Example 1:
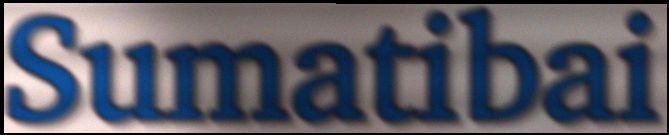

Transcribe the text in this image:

Sumatibai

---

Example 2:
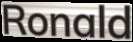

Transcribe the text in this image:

Ronald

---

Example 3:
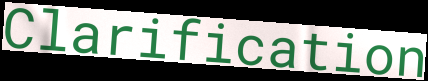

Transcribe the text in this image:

Clarification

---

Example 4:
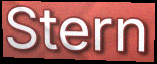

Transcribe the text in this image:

Stern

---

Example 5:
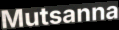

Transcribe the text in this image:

Mutsanna